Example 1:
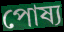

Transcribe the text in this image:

পোষ্য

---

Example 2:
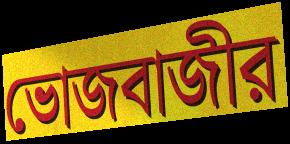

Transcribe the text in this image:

ভোজবাজীর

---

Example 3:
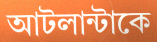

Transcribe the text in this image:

আটলান্টাকে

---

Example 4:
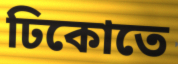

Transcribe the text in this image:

ঢিকোতে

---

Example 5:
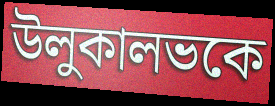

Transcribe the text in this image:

উলুকালভকে